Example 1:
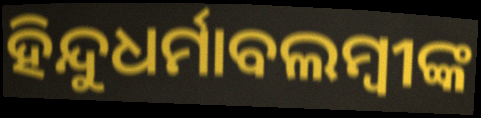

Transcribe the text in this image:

ହିନ୍ଦୁଧର୍ମାବଲମ୍ବୀଙ୍କ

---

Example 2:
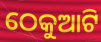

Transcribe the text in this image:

ଠେକୁଆଟି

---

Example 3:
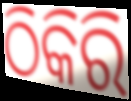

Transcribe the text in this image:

ଠିକିରି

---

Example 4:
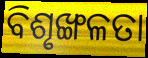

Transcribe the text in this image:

ବିଶୃଙ୍ଖଳତା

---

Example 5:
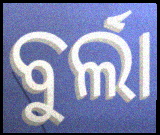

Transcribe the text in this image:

ବୁର୍ଲା